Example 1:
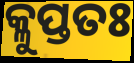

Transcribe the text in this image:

କ୍ଳୁପ୍ତତଃ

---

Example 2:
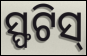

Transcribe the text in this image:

ସ୍ଫଟିସ୍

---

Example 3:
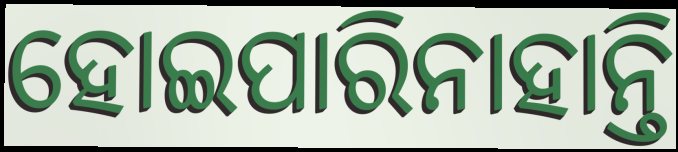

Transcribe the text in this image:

ହୋଇପାରିନାହାନ୍ତି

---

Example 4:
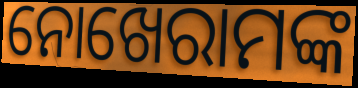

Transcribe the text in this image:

ନୋଖେରାମଙ୍କ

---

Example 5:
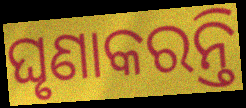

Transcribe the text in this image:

ଘୃଣାକରନ୍ତି